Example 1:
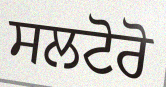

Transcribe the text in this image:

ਸਲਟੋਰੋ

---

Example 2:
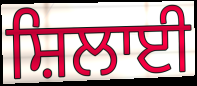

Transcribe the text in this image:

ਸ਼ਿਲਾਈ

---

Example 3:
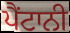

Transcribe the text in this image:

ਪੈਂਟਾਨੀ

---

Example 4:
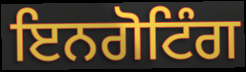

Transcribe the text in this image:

ਇਨਗੋਟਿੰਗ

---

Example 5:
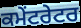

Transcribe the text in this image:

ਕਮੇਂਟਰੇਟਰ